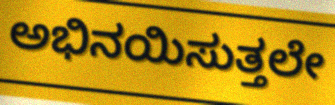
ಅಭಿನಯಿಸುತ್ತಲೇ